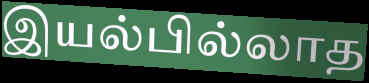
இயல்பில்லாத